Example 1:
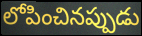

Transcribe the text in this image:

లోపించినప్పుడు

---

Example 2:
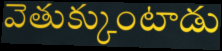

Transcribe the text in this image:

వెతుక్కుంటాడు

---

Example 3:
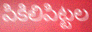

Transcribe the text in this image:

పికిలిపిట్టల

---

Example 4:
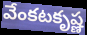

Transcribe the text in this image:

వేంకటకృష్ణ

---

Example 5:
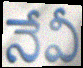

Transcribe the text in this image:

నేవీ